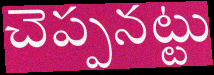
చెప్పనట్టు